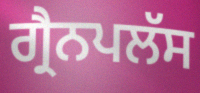
ਗ੍ਰੈਨਪਲੱਸ